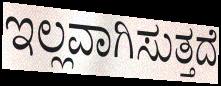
ಇಲ್ಲವಾಗಿಸುತ್ತದೆ